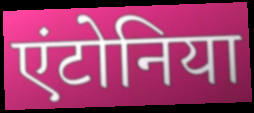
एंटोनिया